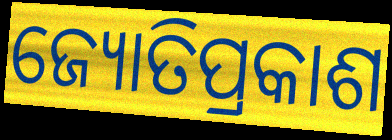
ଜ୍ୟୋତିପ୍ରକାଶ